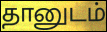
தானுடம்